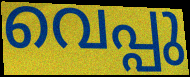
വെപ്പു